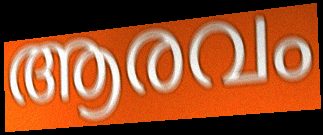
ആരവം